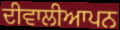
ਦੀਵਾਲੀਆਪਨ